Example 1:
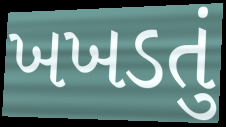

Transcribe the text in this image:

ખખડતું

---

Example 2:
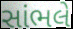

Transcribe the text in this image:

સાંભલે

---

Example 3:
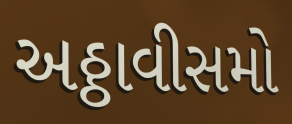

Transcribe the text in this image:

અઠ્ઠાવીસમો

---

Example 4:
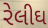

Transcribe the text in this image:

રેલીઘ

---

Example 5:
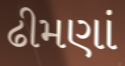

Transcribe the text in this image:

ઢીમણાં